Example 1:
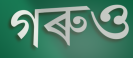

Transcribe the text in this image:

গৰুও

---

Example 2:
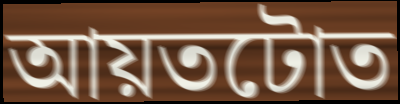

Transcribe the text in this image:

আয়তটোত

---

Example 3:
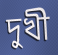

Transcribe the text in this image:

দুখী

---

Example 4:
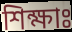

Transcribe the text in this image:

শিক্ষাঃ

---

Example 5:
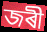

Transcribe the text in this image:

জৰী